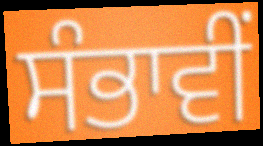
ਸੰਭਾਵੀਂ